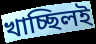
খাচ্ছিলই